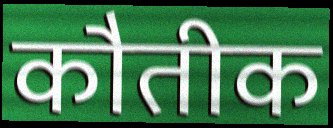
कौतीक